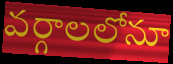
వర్గాలలోనూ